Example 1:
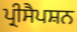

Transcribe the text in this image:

ਪ੍ਰੀਸੈਪਸ਼ਨ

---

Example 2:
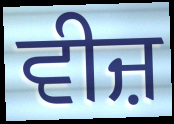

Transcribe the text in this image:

ਵੀਜ਼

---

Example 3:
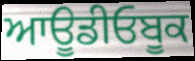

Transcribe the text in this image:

ਆਊਡੀਓਬੂਕ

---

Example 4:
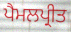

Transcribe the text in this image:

ਪੈਮਲਪ੍ਰੀਤ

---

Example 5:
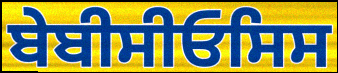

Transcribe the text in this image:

ਬੇਬੀਸੀਓਸਿਸ